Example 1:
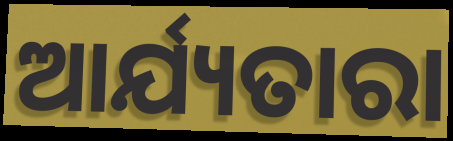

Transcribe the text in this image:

ଆର୍ଯ୍ୟତାରା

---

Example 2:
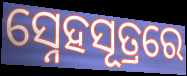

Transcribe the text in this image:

ସ୍ନେହସୂତ୍ରରେ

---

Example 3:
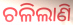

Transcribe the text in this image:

ଚଳିଲାଣି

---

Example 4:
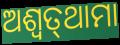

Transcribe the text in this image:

ଅଶ୍ଵତ୍‌ଥାମା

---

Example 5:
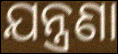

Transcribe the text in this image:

ଯନ୍ତ୍ରଣା